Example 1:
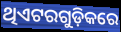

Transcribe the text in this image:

ଥିଏଟରଗୁଡ଼ିକରେ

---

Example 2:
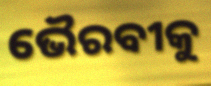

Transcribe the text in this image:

ଭୈରବୀକୁ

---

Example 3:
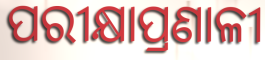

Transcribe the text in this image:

ପରୀକ୍ଷାପ୍ରଣାଳୀ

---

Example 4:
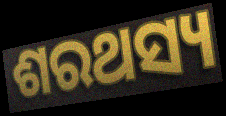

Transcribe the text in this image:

ଶରଥସ୍ୟ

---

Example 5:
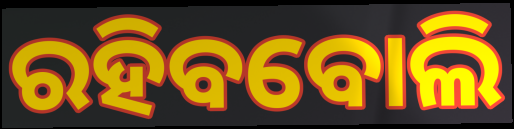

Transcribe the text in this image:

ରହିବବୋଲି